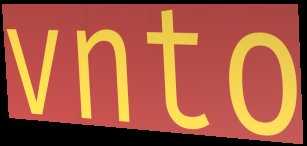
vnto